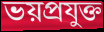
ভয়প্রযুক্ত